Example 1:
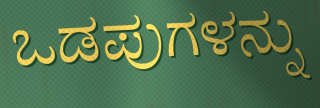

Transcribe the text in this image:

ಒಡಪುಗಳನ್ನು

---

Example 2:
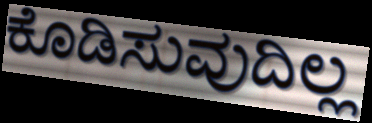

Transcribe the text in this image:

ಕೊಡಿಸುವುದಿಲ್ಲ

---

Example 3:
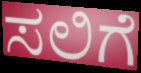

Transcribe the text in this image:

ಸಲಿಗೆ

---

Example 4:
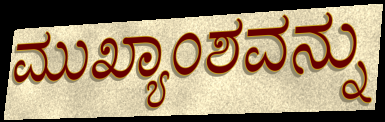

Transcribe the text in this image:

ಮುಖ್ಯಾಂಶವನ್ನು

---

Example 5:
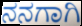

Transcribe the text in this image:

ನನಗಾಗಿ